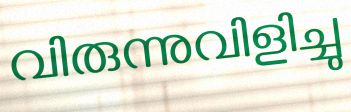
വിരുന്നുവിളിച്ചു